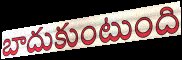
బాదుకుంటుంది